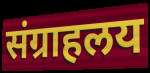
संग्राहलय